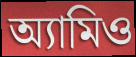
অ্যামিও